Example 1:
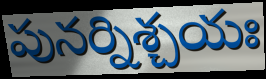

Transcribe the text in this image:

పునర్నిశ్చయః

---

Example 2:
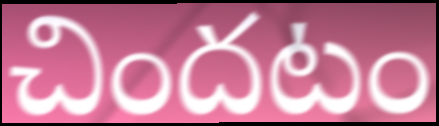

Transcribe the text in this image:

చిందటం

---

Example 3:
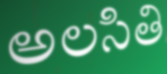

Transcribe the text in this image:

అలసితి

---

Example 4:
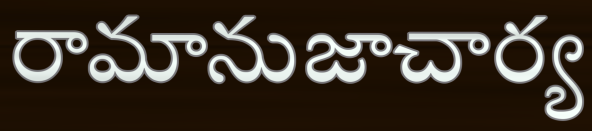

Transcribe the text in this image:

రామానుజాచార్య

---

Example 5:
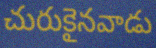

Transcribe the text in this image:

చురుకైనవాడు